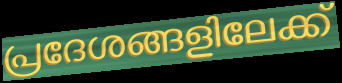
പ്രദേശങ്ങളിലേക്ക്